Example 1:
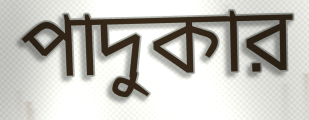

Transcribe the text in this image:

পাদুকার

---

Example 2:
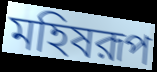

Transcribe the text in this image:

মহিষরূপ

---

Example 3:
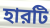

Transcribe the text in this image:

হারটি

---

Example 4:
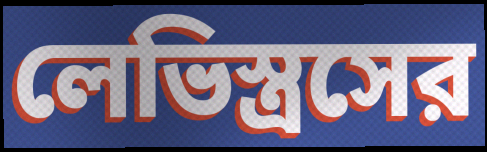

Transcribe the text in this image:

লেভিস্ত্রসের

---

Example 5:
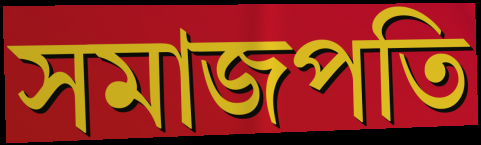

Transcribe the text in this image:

সমাজপতি